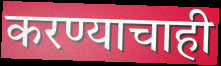
करण्याचाही